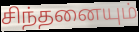
சிந்தனையும்